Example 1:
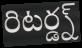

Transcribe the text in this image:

రిటర్డ్న్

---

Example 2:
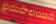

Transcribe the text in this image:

ఖైదుపాలయిన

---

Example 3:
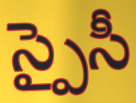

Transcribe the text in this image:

స్పైసీ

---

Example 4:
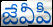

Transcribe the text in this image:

జేవీపీ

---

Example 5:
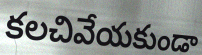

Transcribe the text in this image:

కలచివేయకుండా